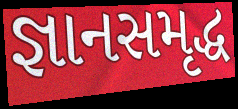
જ્ઞાનસમૃદ્ધ